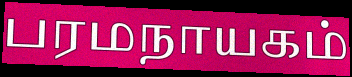
பரமநாயகம்